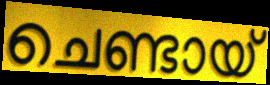
ചെണ്ടായ്